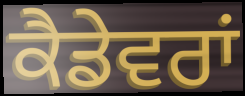
ਕੈਡੇਵਰਾਂ